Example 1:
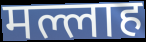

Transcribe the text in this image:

मल्‍लाह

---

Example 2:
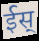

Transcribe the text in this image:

ईस्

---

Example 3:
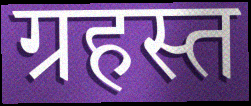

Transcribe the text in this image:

ग्रहस्त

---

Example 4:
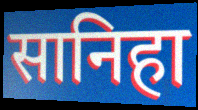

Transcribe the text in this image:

सानिहा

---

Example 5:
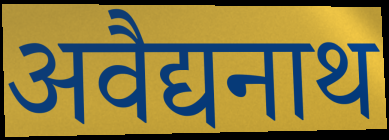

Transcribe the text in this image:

अवैद्यनाथ